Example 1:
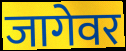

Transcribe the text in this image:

जागेवर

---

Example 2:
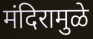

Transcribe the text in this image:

मंदिरामुळे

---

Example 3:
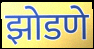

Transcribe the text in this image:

झोडणे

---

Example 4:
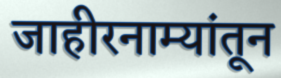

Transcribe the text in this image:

जाहीरनाम्यांतून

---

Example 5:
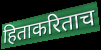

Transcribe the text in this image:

हिताकरिताच